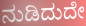
ನುಡಿದುದೇ